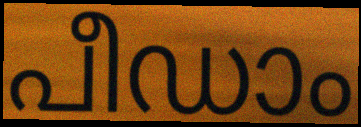
പീഡാം